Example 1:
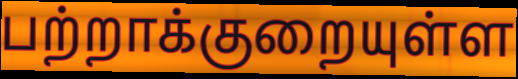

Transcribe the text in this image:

பற்றாக்குறையுள்ள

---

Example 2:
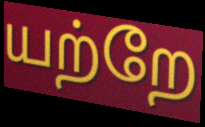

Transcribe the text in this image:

யற்றே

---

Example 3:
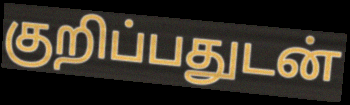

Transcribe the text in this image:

குறிப்பதுடன்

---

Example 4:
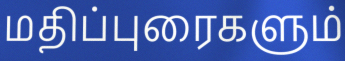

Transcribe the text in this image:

மதிப்புரைகளும்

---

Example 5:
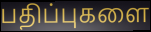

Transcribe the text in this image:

பதிப்புகளை